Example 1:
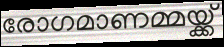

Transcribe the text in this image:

രോഗമാണമ്മയ്ക്ക്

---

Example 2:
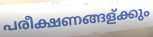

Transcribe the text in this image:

പരീക്ഷണങ്ങള്ക്കും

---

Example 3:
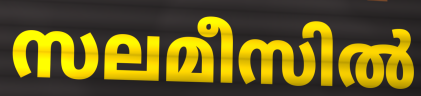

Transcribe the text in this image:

സലമീസിൽ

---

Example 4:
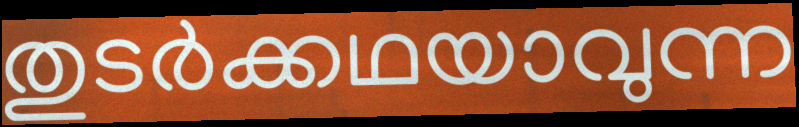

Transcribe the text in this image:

തുടർക്കഥയാവുന്ന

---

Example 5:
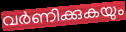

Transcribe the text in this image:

വർണിക്കുകയും